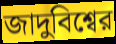
জাদুবিশ্বের